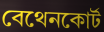
বেথেনকোর্ট